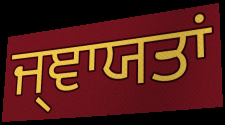
ਜ੍ਞਾਯਤਾਂ